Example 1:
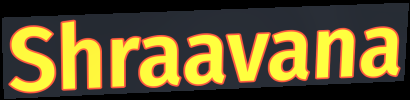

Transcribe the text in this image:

Shraavana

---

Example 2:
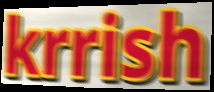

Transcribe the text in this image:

krrish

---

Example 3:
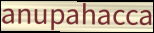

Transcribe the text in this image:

anupahacca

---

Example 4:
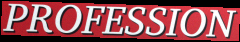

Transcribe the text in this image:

PROFESSION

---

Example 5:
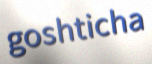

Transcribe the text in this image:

goshticha